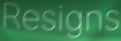
Resigns